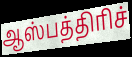
ஆஸ்பத்திரிச்